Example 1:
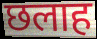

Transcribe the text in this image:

छलाह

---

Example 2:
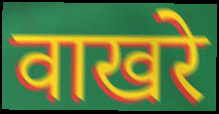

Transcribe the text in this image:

वाखरे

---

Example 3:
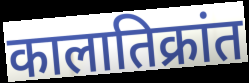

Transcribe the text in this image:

कालातिक्रांत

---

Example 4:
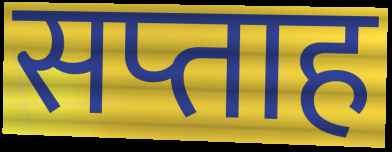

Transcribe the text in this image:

सप्‍ताह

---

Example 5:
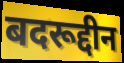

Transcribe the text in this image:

बदरूद्दीन